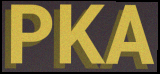
PKA